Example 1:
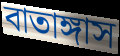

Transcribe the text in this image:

বাতাঙ্গাস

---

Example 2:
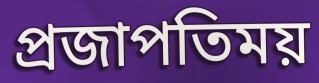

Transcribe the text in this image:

প্রজাপতিময়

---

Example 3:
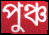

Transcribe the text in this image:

পুঞ্চ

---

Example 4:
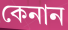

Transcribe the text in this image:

কেনান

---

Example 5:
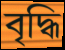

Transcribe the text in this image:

বৃদ্ধি